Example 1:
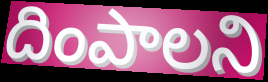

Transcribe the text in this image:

దింపాలని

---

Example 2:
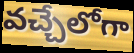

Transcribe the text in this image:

వచ్చేలోగా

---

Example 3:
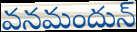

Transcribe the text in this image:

వనమందున్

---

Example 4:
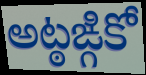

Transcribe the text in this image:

అట్ఠఙ్గికో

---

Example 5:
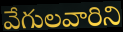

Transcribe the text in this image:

వేగులవారిని